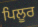
ਪਿਲੂਰ